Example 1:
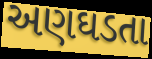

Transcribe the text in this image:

અણઘડતા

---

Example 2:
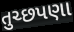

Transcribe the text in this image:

તુચ્છપણા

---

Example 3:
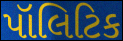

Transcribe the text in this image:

પૉલિટિક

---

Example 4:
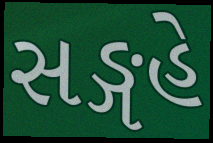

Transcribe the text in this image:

સઙ્ગહે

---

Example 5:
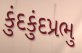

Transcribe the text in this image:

કુંદકુંદપ્રભુ